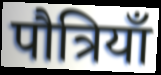
पौत्रियाँ